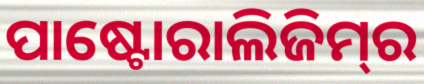
ପାଷ୍ଟୋରାଲିଜିମ୍‌ର